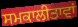
ਸਮਕਾਲੀਤਾਵਾਂ